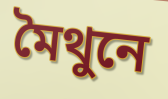
মৈথুনে